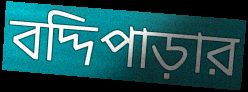
বদ্দিপাড়ার